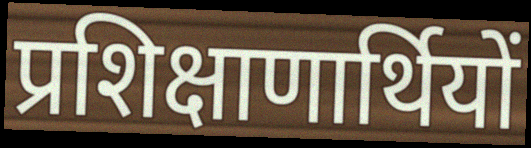
प्रशिक्षाणार्थियों